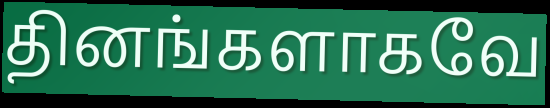
தினங்களாகவே